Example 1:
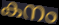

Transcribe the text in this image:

കനം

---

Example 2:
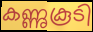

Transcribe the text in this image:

കണ്ണുകൂടി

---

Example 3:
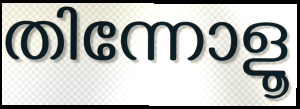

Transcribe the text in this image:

തിന്നോളൂ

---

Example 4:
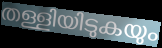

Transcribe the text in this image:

തള്ളിയിടുകയും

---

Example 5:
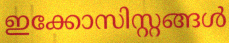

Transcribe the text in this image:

ഇക്കോസിസ്റ്റങ്ങൾ